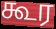
கூர